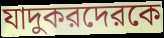
যাদুকরদেরকে